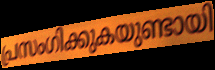
പ്രസംഗിക്കുകയുണ്ടായി